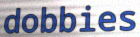
dobbies